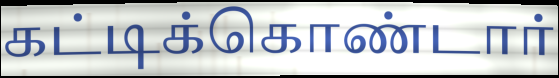
கட்டிக்கொண்டார்